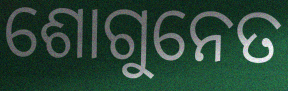
ଶୋଗୁନେତ